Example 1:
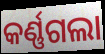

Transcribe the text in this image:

କର୍ଣ୍ଣଗଲା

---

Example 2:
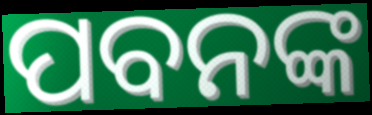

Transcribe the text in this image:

ପବନଙ୍କ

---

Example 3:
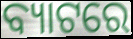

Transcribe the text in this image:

ବ୍ୟାଟରେ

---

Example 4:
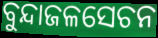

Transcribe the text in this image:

ବୁନ୍ଦାଜଳସେଚନ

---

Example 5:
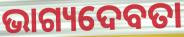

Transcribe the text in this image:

ଭାଗ୍ୟଦେବତା